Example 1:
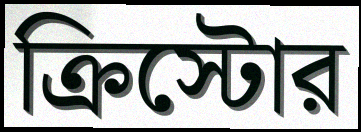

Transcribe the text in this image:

ক্রিস্টোর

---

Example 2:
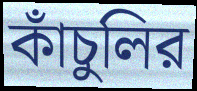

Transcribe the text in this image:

কাঁচুলির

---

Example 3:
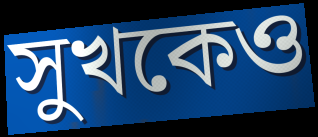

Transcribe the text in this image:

সুখকেও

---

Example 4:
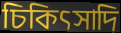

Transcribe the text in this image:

চিকিৎসাদি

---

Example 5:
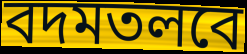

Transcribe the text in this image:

বদমতলবে